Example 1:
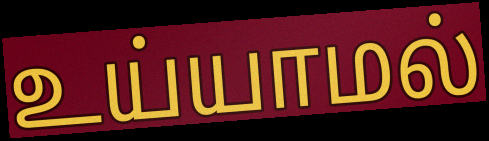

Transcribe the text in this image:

உய்யாமல்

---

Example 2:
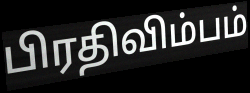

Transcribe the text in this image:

பிரதிவிம்பம்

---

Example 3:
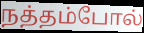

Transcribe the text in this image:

நத்தம்போல்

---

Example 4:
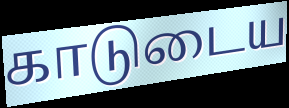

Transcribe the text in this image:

காடுடைய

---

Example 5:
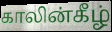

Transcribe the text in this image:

காலின்கீழ்